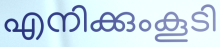
എനിക്കുംകൂടി